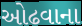
ઓઢવાના